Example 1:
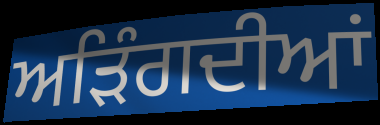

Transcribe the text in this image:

ਅੜਿੰਗਦੀਆਂ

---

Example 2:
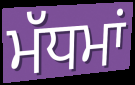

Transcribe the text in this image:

ਮੱਧਮਾਂ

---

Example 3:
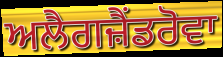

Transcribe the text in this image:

ਅਲੈਗਜ਼ੈਂਡਰੋਵਾ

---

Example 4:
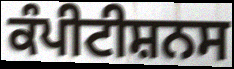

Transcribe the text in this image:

ਕੰਪੀਟੀਸ਼ਨਸ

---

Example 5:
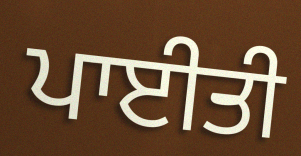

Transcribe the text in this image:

ਪਾਈਤੀ